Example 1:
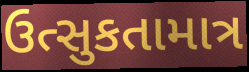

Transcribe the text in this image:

ઉત્સુકતામાત્ર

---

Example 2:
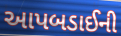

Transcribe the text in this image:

આપબડાઈની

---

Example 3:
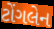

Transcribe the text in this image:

ટોંગલેન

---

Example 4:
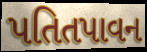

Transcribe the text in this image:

પતિતપાવન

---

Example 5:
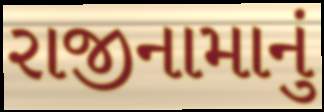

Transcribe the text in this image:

રાજીનામાનું